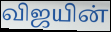
விஜயின்